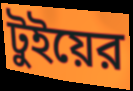
টুইয়ের